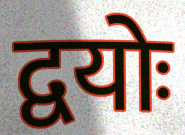
द्वयोः